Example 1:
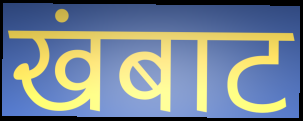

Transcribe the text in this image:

खंबाट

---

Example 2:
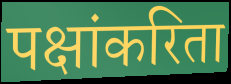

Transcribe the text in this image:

पक्षांकरिता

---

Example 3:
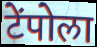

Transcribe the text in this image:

टेंपोला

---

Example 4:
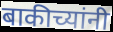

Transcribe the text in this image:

बाकीच्यांनी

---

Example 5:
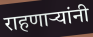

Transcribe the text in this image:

राहणार्‍यांनी